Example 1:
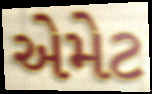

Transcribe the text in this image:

એમેટ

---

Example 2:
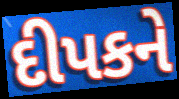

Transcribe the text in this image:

દીપકને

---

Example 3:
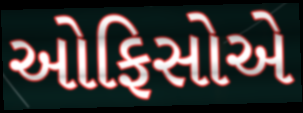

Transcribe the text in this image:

ઓફિસોએ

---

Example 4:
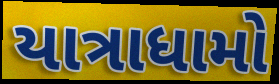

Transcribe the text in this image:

યાત્રાધામો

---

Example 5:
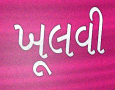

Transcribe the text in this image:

ખૂલવી